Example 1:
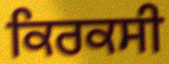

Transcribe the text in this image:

ਕਿਰਕਸੀ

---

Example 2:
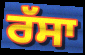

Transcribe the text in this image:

ਰੱਸਾ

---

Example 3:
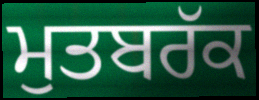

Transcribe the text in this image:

ਮੁਤਬਰੱਕ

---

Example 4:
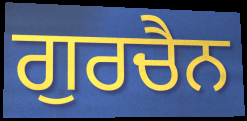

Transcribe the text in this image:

ਗੁਰਚੈਨ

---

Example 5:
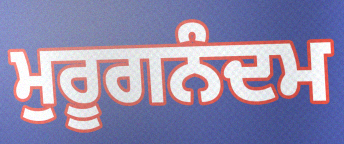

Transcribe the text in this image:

ਮੁਰੂਗਨੰਦਮ